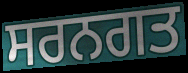
ਸਰਨਗਤ